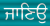
ਜਾਣਿਉ